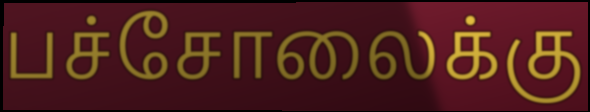
பச்சோலைக்கு